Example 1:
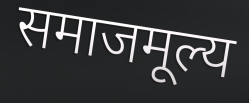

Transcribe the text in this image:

समाजमूल्य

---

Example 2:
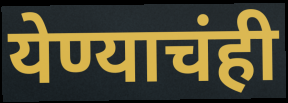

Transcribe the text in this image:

येण्याचंही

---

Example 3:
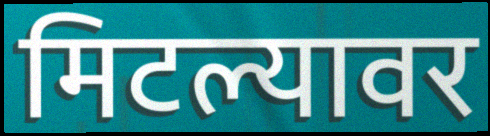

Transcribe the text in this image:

मिटल्यावर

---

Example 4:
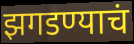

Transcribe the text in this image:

झगडण्याचं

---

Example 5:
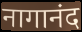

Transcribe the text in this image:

नागानंद